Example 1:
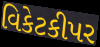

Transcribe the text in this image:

વિકેટકીપર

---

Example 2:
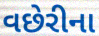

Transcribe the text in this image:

વછેરીના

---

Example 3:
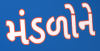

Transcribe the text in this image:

મંડળોને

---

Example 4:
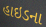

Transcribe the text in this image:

હાઇડના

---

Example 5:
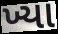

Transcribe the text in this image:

ખ્યા